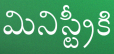
మినిస్ట్రీకి